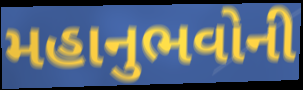
મહાનુભવોની